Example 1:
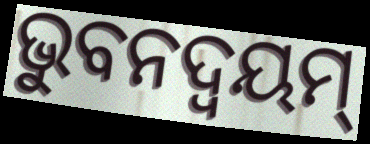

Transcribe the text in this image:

ଭୁବନଦ୍ଵୟମ୍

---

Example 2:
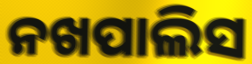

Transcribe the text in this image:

ନଖପାଲିସ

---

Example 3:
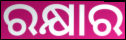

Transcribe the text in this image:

ରକ୍ଷାର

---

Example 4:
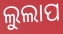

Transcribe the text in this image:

ଲୁଲାପ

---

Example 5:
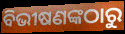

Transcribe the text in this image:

ବିଭୀଷଣଙ୍କଠାରୁ